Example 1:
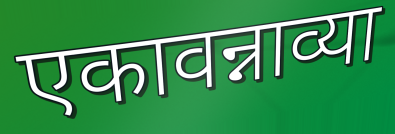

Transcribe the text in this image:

एकावन्नाव्या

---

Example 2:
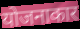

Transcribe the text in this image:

योजनाकार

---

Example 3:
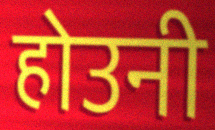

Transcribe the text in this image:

होउनी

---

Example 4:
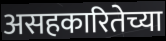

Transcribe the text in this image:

असहकारितेच्या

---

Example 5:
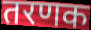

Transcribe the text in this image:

तरणक